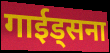
गाईड्सना